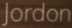
Jordon